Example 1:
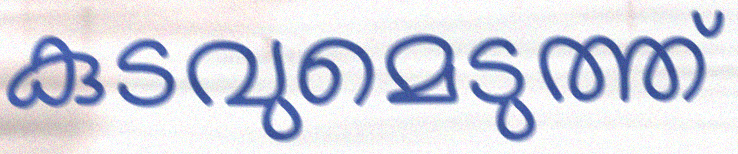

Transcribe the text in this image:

കുടവുമെടുത്ത്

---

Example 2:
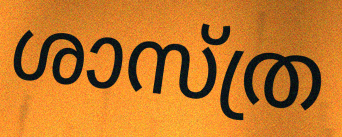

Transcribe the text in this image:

ശാസ്ത്ര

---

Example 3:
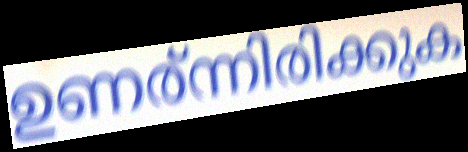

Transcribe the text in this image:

ഉണര്ന്നിരിക്കുക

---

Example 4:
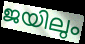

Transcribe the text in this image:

ജയിലും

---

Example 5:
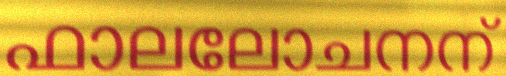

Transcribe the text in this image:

ഫാലലോചനന്